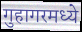
गुहागरमध्ये